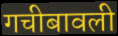
गचीबावली